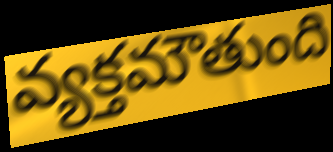
వ్యక్తమౌతుంది